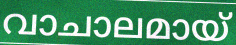
വാചാലമായ്